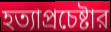
হত্যাপ্রচেষ্টার